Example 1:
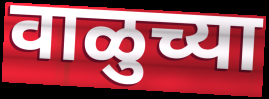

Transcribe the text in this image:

वाळुच्या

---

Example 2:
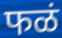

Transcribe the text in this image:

फळं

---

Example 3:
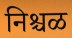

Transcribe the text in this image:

निश्चळ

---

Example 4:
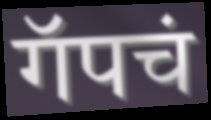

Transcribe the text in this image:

गॅपचं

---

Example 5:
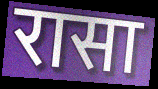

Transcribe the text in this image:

रासा